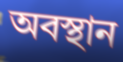
অবস্থান